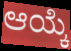
ಆಯ್ಕೆ